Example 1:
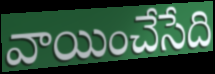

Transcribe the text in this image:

వాయించేసేది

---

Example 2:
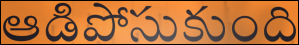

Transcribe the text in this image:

ఆడిపోసుకుంది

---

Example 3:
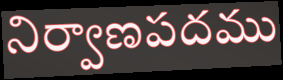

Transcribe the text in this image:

నిర్వాణపదము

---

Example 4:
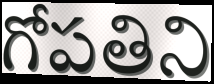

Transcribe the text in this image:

గోపతిని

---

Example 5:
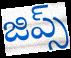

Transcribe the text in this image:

జిప్స్